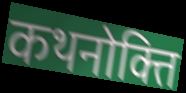
कथनोक्ति